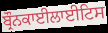
ਬ੍ਰੌਨਕਾਈਲਾਈਟਿਸ